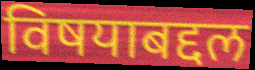
विषयाबद्दल